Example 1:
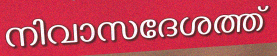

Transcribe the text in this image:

നിവാസദേശത്ത്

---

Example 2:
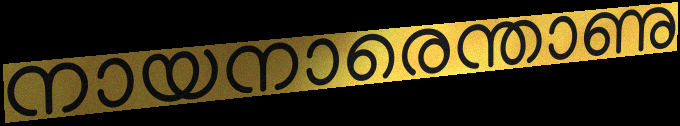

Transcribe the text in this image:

നായനാരെന്താണു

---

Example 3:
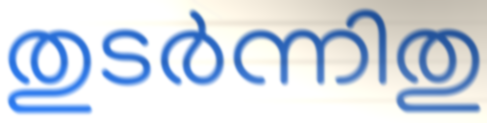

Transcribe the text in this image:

തുടർന്നിതു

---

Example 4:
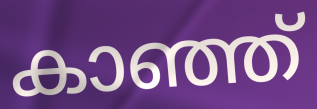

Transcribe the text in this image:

കാഞ്ഞ്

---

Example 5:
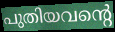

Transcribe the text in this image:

പുതിയവന്റെ